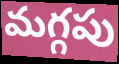
మగ్గపు